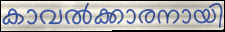
കാവൽക്കാരനായി